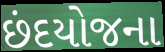
છંદયોજના